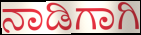
ನಾಡಿಗಾಗಿ